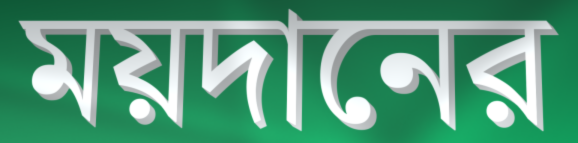
ময়দানের